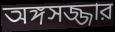
অঙ্গসজ্জার